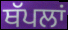
ਥੱਪਲਾਂ